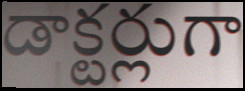
డాక్టర్లుగా